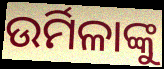
ଉର୍ମିଳାଙ୍କୁ